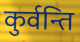
कुर्वन्ति